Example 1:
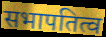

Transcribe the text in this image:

सभापतित्व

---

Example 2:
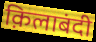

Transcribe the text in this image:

क़िलाबंदी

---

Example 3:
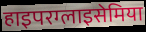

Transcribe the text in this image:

हाइपरग्लाइसेमिया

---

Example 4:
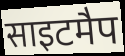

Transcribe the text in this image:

साइटमैप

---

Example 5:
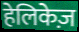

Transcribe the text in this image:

हेलिकेज़